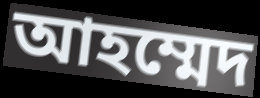
আহম্মেদ